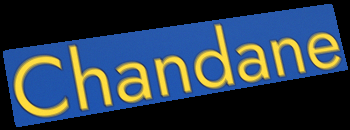
Chandane